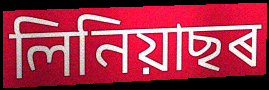
লিনিয়াছৰ